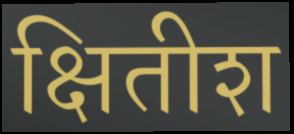
क्षितीश